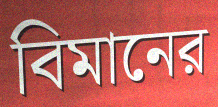
বিমানের